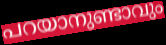
പറയാനുണ്ടാവും